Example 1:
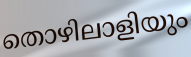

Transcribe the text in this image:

തൊഴിലാളിയും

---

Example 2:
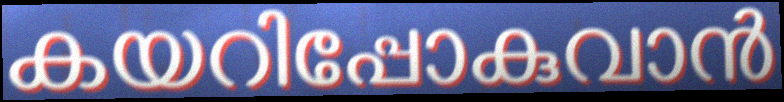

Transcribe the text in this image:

കയറിപ്പോകുവാൻ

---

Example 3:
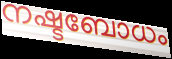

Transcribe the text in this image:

നഷ്ടബോധം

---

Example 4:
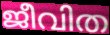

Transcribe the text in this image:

ജീവിത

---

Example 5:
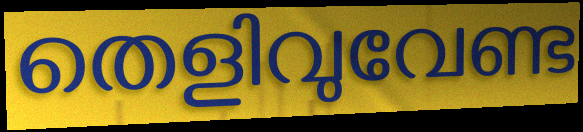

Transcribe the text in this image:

തെളിവുവേണ്ട